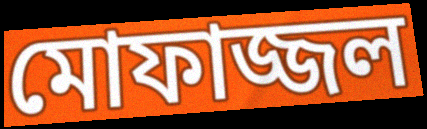
মোফাজ্জল